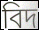
বিদ